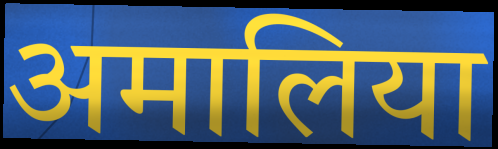
अमालिया